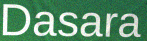
Dasara